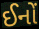
ઈનોં